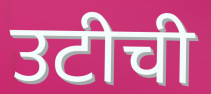
उटीची